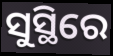
ସୁସ୍ଥିରେ